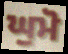
ਘੁਮੋ